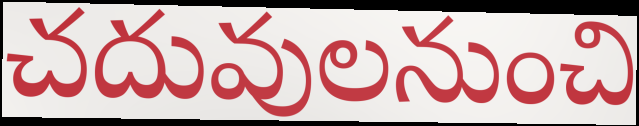
చదువులనుంచి